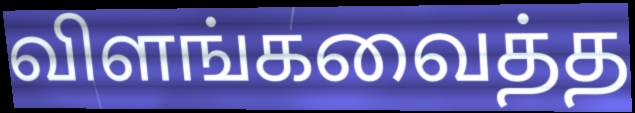
விளங்கவைத்த